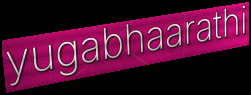
yugabhaarathi